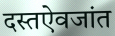
दस्तऐवजांत